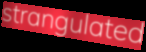
strangulated